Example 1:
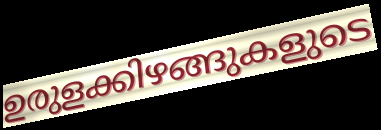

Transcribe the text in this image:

ഉരുളക്കിഴങ്ങുകളുടെ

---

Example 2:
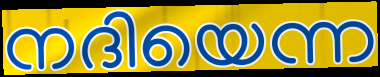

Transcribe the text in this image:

നദിയെന്ന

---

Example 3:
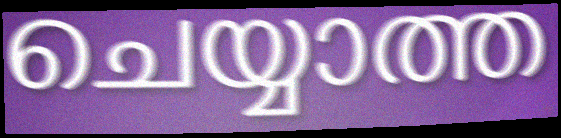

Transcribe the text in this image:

ചെയ്യാത്ത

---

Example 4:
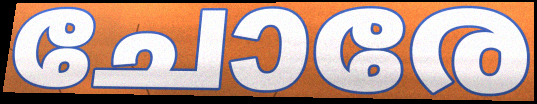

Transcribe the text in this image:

ചോരേ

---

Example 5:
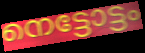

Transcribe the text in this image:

നെട്ടോട്ടം